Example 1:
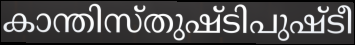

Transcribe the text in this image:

കാന്തിസ്തുഷ്ടിപുഷ്ടീ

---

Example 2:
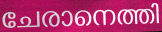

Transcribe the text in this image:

ചേരാനെത്തി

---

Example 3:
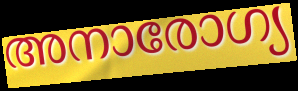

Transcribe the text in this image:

അനാരോഗ്യ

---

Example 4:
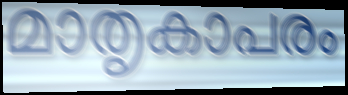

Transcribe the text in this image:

മാതൃകാപരം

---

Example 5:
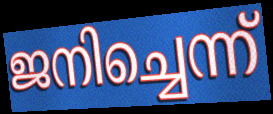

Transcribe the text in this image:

ജനിച്ചെന്ന്